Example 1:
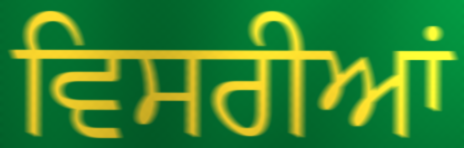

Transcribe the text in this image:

ਵਿਸਰੀਆਂ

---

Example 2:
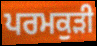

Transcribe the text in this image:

ਪਰਮਕੁੜੀ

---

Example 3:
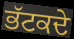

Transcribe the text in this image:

ਭੱਟਕਦੇ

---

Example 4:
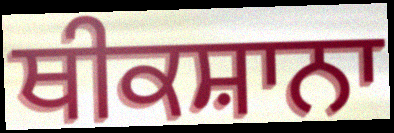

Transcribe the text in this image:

ਥੀਕਸ਼ਾਨਾ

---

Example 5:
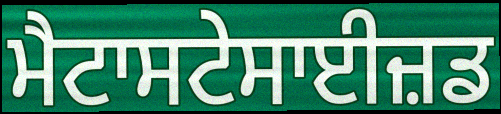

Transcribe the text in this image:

ਮੈਟਾਸਟੇਸਾਈਜ਼ਡ